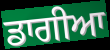
ਡਾਗੀਆ